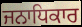
ਜਨਾਧਿਕਾਰ